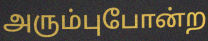
அரும்புபோன்ற